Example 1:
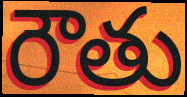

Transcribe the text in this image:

రౌతు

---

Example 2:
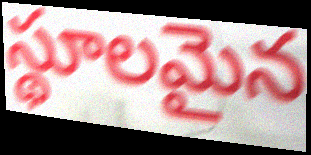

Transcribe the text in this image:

స్థూలమైన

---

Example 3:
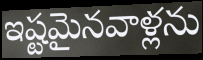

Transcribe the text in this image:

ఇష్టమైనవాళ్లను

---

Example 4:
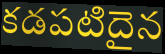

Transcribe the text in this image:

కడపటిదైన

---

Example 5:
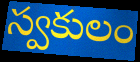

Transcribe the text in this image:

స్వకులం